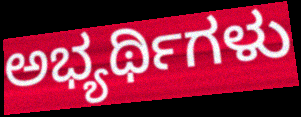
ಅಭ್ಯರ್ಥಿಗಳು